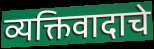
व्यक्तिवादाचे